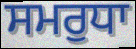
ਸਮਰੁਧਾ